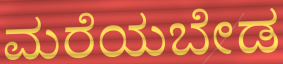
ಮರೆಯಬೇಡ